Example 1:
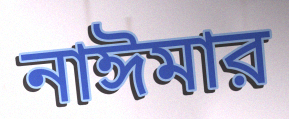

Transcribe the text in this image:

নাঈমার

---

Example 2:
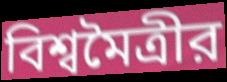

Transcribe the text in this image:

বিশ্বমৈত্রীর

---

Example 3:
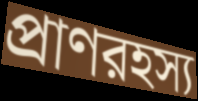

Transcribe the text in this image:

প্রাণরহস্য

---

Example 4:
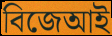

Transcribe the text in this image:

বিজেআই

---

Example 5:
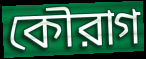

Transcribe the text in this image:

কৌরাগ